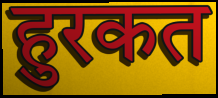
हुरकत